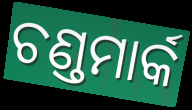
ଚଣ୍ଡମାର୍କ